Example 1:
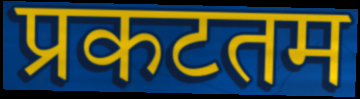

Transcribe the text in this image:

प्रकटतम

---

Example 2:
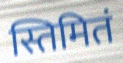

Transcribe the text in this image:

स्तिमितं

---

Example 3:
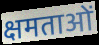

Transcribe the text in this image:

क्षमताओं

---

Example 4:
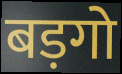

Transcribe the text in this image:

बड़गो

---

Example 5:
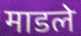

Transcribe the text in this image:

माडले